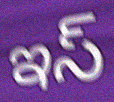
ఇస్